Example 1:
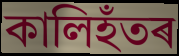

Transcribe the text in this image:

কালিহঁতৰ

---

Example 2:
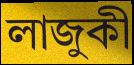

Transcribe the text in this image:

লাজুকী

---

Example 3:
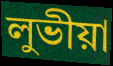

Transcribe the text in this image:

লুভীয়া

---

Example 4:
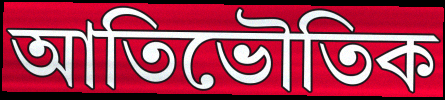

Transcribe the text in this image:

আতিভৌতিক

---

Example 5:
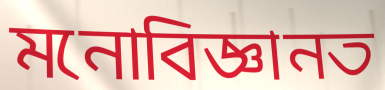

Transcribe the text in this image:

মনোবিজ্ঞানত